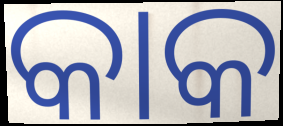
କାକ